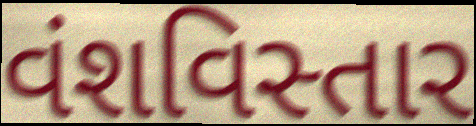
વંશવિસ્તાર